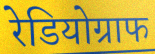
रेडियोग्राफ